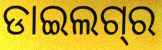
ଡାଇଲଗ୍‌ର